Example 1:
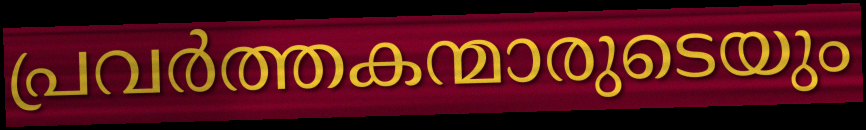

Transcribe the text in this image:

പ്രവർത്തകന്മാരുടെയും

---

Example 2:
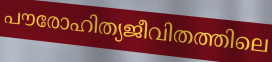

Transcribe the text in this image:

പൗരോഹിത്യജീവിതത്തിലെ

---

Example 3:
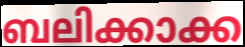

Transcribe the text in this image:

ബലിക്കാക്ക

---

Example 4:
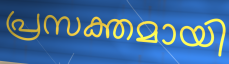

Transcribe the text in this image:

പ്രസക്തമായി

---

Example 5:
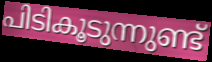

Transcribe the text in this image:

പിടികൂടുന്നുണ്ട്